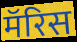
मॅरिस